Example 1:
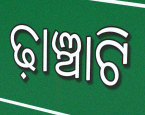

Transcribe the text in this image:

ଢ଼ାଞ୍ଚାଟି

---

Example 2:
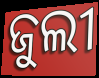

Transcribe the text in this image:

ଜୁଲୀ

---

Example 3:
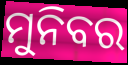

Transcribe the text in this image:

ମୁନିବର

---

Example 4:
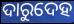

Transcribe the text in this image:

ଦାରୁଦେହ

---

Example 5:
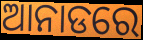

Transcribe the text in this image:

ଆନାଡରେ